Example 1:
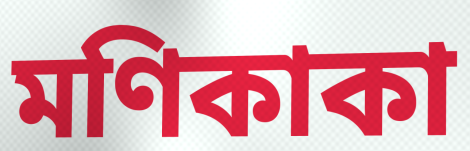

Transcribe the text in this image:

মণিকাকা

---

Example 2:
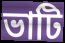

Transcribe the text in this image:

ভাটি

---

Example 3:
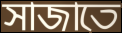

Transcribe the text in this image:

সাজাতে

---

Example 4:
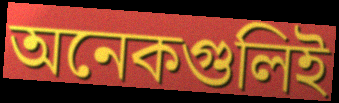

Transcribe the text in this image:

অনেকগুলিই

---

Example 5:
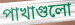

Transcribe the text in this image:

পাখাগুলো